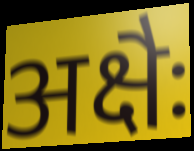
अक्षैः